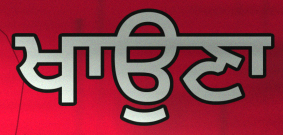
ਖਾਉਣਾ